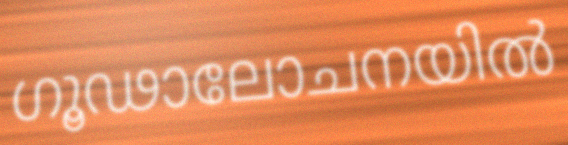
ഗൂഢാലോചനയിൽ